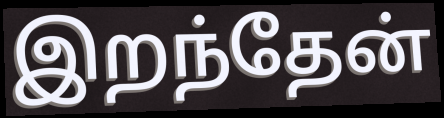
இறந்தேன்